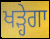
ਖੜ੍ਹੇਗਾ